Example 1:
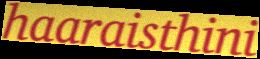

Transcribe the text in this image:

haaraisthini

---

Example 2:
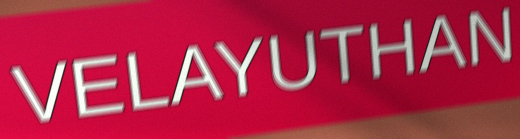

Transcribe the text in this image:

VELAYUTHAN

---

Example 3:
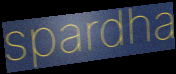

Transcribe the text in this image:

spardha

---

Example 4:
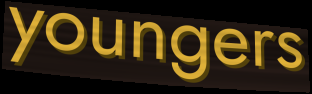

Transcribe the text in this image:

youngers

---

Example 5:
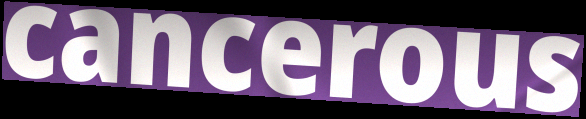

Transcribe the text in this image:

cancerous